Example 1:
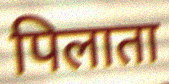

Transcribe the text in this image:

पिलाता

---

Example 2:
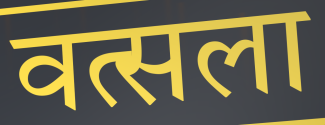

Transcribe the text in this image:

वत्‍सला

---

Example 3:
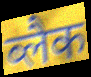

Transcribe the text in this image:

ब्लैक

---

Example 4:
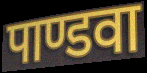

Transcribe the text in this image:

पाण्डवा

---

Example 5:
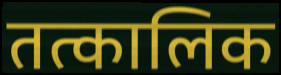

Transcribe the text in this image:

तत्कालिक